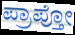
ಪ್ರಾಪ್ತೋ